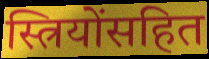
स्त्रियोंसहित